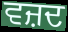
ਵਜ਼ਦ